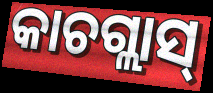
କାଚଗ୍ଲାସ୍